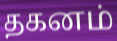
தகனம்